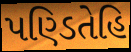
પણ્ડિતેહિ